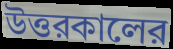
উত্তরকালের